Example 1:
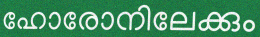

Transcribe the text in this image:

ഹോരോനിലേക്കും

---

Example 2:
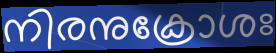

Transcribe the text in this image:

നിരനുക്രോശഃ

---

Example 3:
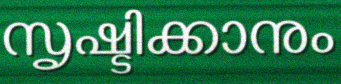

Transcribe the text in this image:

സൃഷ്ടിക്കാനും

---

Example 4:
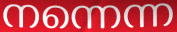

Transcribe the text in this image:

നന്നെന്ന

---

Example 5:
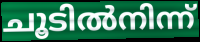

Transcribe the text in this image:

ചൂടിൽനിന്ന്